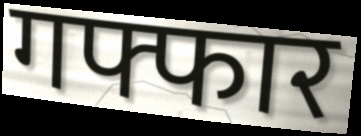
गफ्फार